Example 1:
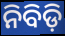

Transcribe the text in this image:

ନିବିଡ଼ି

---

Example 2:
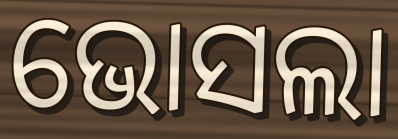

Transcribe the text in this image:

ଭୋସଲା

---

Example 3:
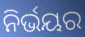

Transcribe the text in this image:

ନିର୍ଭୟର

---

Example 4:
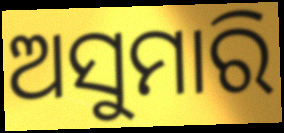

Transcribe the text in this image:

ଅସୁମାରି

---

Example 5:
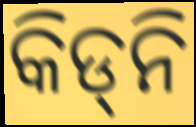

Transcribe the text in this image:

କିଡ୍‌ନି